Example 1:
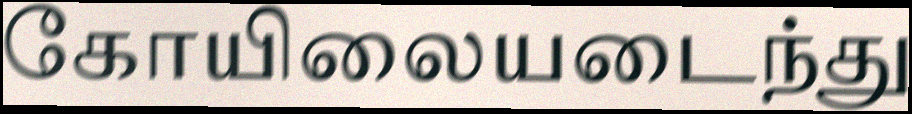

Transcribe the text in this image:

கோயிலையடைந்து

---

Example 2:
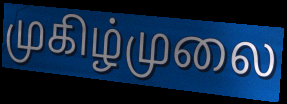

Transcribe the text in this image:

முகிழ்முலை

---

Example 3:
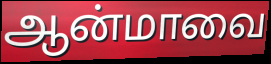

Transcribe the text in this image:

ஆன்மாவை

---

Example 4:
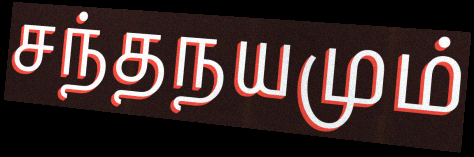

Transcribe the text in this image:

சந்தநயமும்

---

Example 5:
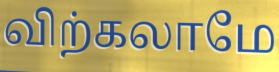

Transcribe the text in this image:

விற்கலாமே